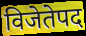
विजेतेपद